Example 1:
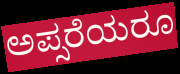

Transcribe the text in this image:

ಅಪ್ಸರೆಯರೂ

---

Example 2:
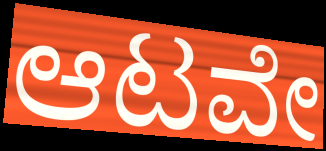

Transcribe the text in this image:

ಆಟವೇ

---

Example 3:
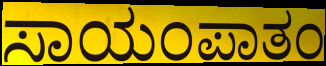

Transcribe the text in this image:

ಸಾಯಂಪಾತಂ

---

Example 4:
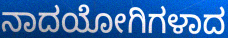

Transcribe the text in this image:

ನಾದಯೋಗಿಗಳಾದ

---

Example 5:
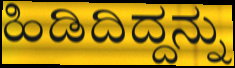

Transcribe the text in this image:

ಹಿಡಿದಿದ್ದನ್ನು